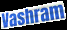
Vashram